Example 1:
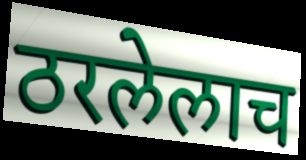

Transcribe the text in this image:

ठरलेलाच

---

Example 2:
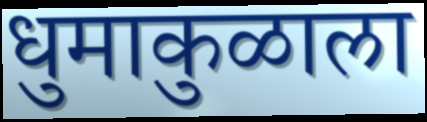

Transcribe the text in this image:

धुमाकुळाला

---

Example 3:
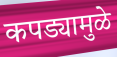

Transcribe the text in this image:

कपड्यामुळे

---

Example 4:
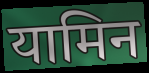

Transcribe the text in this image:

यामिन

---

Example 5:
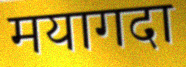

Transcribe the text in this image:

मयागदा